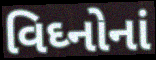
વિઘ્નોનાં